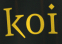
koi